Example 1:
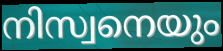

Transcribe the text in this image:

നിസ്വനെയും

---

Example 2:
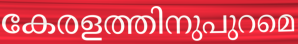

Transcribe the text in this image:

കേരളത്തിനുപുറമെ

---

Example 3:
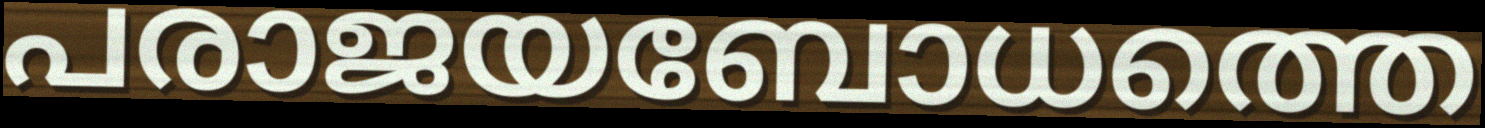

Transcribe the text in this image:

പരാജയബോധത്തെ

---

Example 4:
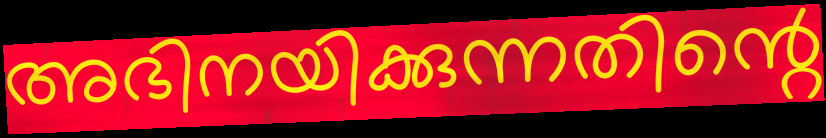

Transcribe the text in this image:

അഭിനയിക്കുന്നതിന്റെ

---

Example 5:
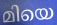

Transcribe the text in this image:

മിയെ